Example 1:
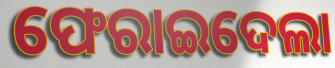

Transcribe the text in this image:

ଫେରାଇଦେଲା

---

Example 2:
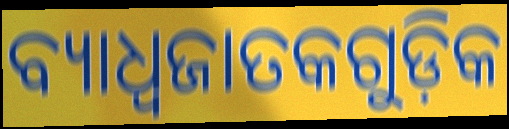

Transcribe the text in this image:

ବ୍ୟାଧ୍ଵଜାତକଗୁଡ଼ିକ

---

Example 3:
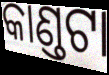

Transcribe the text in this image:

କାଣ୍ଡଟା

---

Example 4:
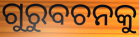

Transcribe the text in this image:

ଗୁରୁବଚନକୁ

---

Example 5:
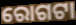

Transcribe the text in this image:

ରୋଗଟା